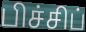
பிச்சிப்